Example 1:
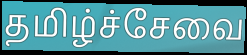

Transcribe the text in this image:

தமிழ்ச்சேவை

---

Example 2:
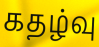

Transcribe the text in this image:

கதழ்வு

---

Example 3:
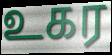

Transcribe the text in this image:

உகர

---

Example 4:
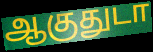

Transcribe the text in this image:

ஆகுதுடா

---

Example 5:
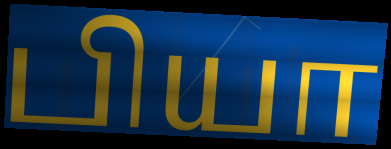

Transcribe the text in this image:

பியா